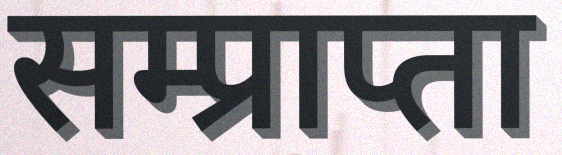
सम्प्राप्ता